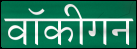
वॉकीगन